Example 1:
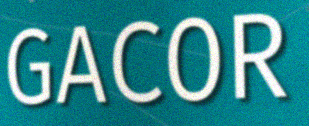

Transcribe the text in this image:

GACOR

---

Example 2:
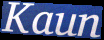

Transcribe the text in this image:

Kaun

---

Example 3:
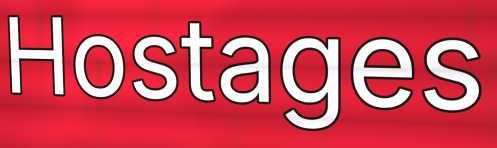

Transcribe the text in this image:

Hostages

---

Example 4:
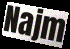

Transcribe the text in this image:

Najm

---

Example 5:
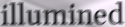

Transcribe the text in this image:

illumined